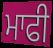
ਮਾਫੀ